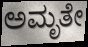
ಅಮೃತೇ